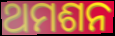
ଥମଶନ